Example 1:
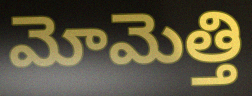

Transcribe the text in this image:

మోమెత్తి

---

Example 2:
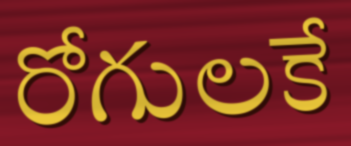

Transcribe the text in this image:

రోగులకే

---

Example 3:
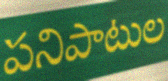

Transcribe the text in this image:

పనిపాటుల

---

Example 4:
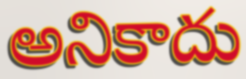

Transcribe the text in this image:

అనికాదు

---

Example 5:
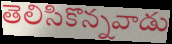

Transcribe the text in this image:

తెలిసికొన్నవాడు